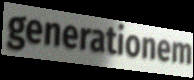
generationem